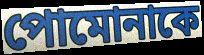
পোমোনাকে